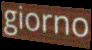
giorno